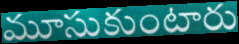
మూసుకుంటారు